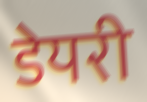
डेयरी